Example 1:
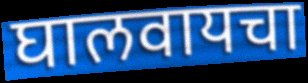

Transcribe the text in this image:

घालवायचा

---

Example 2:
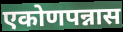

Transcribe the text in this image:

एकोणपन्नास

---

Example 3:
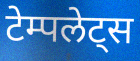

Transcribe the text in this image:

टेम्पलेट्स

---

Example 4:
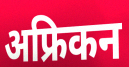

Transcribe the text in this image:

अफ्रिकन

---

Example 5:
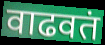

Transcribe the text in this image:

वाढवतं